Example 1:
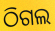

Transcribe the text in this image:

ଠିଗଲ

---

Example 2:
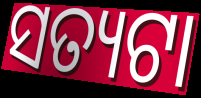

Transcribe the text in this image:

ସତ୍ୟଟା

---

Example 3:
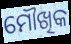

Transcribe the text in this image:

ମୌଖିକ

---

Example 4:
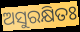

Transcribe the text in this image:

ଅସୁରକ୍ଷିତଃ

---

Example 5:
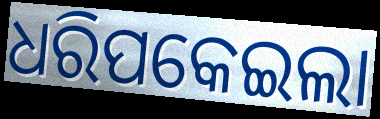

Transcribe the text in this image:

ଧରିପକେଇଲା